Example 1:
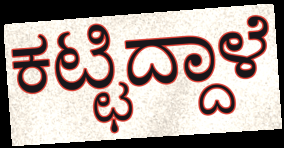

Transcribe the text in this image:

ಕಟ್ಟಿದ್ದಾಳೆ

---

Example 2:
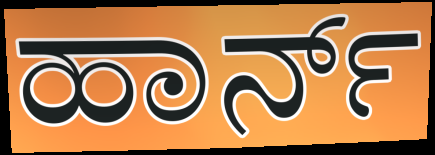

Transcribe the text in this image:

ಹಾರ್ನ್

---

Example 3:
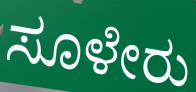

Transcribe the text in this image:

ಸೂಳೇರು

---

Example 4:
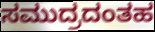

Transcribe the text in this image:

ಸಮುದ್ರದಂತಹ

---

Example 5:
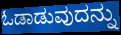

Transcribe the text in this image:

ಓಡಾಡುವುದನ್ನು